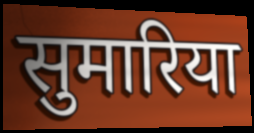
सुमारिया